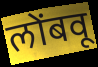
लोंबवू